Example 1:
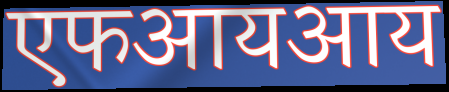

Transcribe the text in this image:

एफआयआय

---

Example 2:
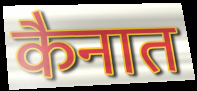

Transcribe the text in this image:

कैनात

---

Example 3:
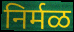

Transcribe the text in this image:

निर्मळ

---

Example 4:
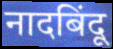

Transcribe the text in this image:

नादबिंदू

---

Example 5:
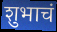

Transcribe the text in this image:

शुभाचं